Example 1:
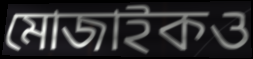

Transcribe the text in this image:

মোজাইকও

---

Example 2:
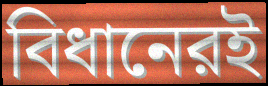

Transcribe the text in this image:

বিধানেরই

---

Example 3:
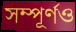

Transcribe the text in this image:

সম্পূর্ণও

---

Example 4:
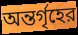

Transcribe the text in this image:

অন্তর্গৃহের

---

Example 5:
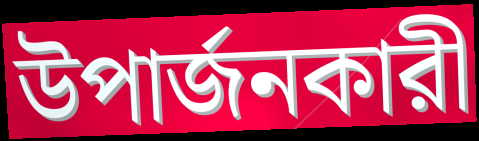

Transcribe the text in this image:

উপার্জনকারী